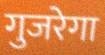
गुजरेगा